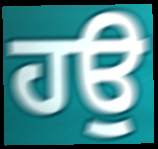
ਹਉ